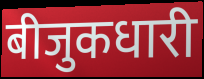
बीजुकधारी